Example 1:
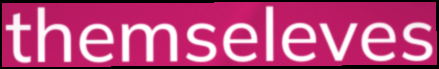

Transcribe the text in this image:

themseleves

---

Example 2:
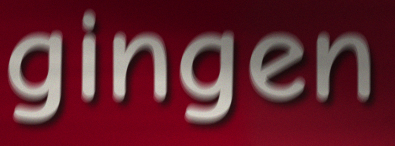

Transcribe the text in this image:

gingen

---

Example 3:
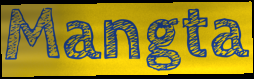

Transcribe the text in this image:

Mangta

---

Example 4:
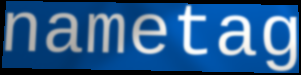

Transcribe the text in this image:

nametag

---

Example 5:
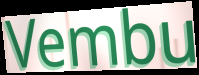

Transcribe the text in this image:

Vembu